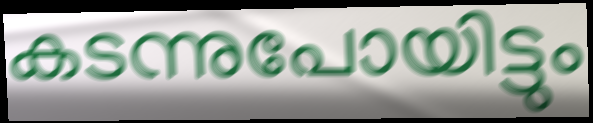
കടന്നുപോയിട്ടും